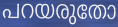
പറയരുതോ